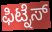
ಫಿಟ್ನೆಸ್